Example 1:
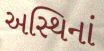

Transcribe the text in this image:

અસ્થિનાં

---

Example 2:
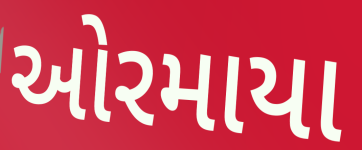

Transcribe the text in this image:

ઓરમાયા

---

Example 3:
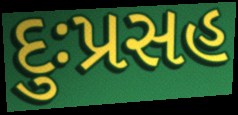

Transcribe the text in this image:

દુઃપ્રસહ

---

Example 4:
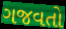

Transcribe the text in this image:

ગજવતો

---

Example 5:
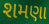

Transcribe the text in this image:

શમણા